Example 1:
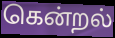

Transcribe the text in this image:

கென்றல்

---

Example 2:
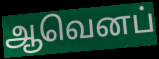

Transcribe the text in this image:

ஆவெனப்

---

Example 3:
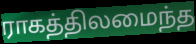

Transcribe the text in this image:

ராகத்திலமைந்த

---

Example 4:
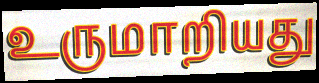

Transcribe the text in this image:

உருமாறியது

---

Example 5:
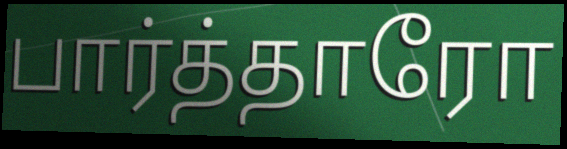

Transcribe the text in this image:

பார்த்தாரோ